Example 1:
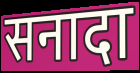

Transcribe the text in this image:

सनादा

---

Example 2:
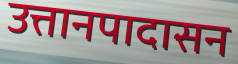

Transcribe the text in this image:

उत्तानपादासन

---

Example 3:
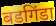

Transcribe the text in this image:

बडगिंडा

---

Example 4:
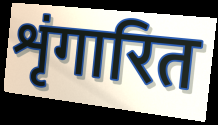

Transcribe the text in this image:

शृंगारित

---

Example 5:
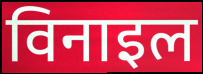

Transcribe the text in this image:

विनाइल